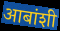
आबांशी